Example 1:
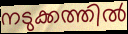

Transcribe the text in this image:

നടുക്കത്തിൽ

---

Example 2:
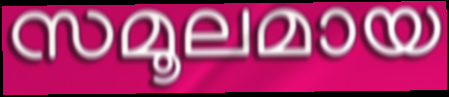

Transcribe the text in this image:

സമൂലമായ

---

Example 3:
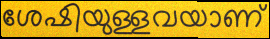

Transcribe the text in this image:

ശേഷിയുള്ളവയാണ്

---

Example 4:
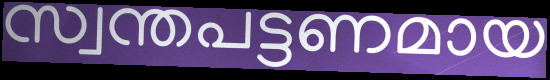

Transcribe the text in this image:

സ്വന്തപട്ടണമായ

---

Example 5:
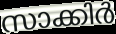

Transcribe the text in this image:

സാക്കിർ